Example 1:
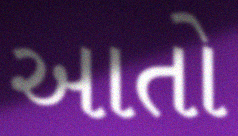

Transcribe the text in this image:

આતો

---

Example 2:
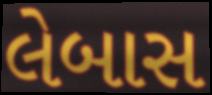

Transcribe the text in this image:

લેબાસ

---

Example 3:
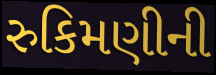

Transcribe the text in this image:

રુકિમણીની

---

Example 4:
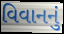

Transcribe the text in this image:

વિવાનનું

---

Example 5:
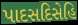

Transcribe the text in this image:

પાદસદિસેહિ